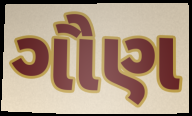
ગૌણ